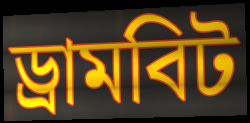
ড্রামবিট